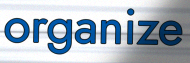
organize